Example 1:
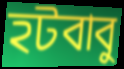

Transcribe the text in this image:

হটবাবু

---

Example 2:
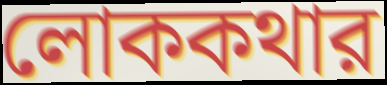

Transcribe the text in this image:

লোককথার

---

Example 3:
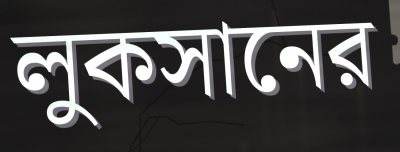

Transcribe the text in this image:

লুকসানের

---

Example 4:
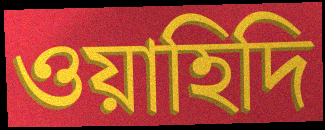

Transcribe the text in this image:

ওয়াহিদি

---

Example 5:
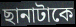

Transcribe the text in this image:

ছানাটাকে